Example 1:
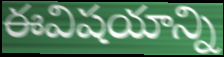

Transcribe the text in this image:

ఈవిషయాన్ని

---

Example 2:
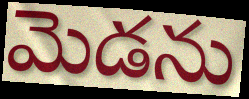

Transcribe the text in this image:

మెడను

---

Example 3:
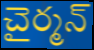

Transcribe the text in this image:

చైర్మన్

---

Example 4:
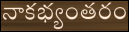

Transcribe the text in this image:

నాకభ్యంతరం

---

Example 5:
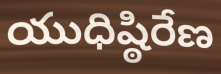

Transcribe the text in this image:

యుధిష్ఠిరేణ